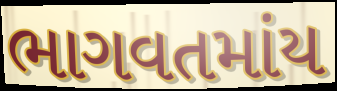
ભાગવતમાંય